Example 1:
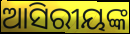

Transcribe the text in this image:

ଆସିରୀୟଙ୍କ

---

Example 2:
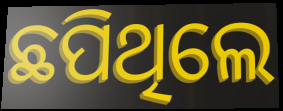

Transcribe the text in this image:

ଛପିଥିଲେ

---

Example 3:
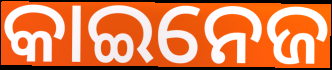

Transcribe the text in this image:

କାଇନେଜ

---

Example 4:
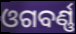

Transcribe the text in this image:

ଓଗବର୍ଣ୍ଣ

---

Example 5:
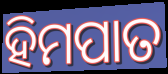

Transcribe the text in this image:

ହିମପାତ